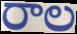
రాల